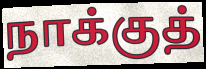
நாக்குத்